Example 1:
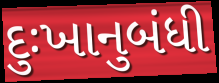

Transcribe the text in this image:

દુઃખાનુબંધી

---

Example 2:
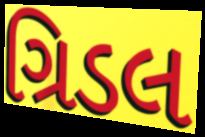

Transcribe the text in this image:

ગ્રિડલ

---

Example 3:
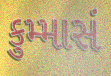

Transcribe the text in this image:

કુમ્માસં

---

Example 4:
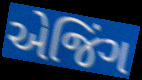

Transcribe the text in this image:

એજિંગ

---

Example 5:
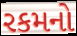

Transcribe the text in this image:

રકમનો